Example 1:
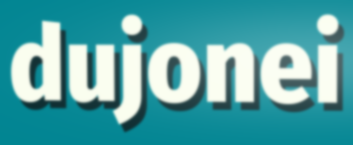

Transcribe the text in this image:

dujonei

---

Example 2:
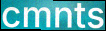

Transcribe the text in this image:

cmnts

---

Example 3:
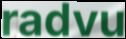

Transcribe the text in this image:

radvu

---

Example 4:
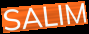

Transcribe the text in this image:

SALIM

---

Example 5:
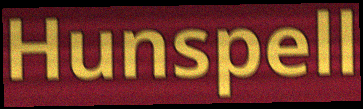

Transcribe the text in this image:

Hunspell